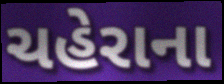
ચહેરાના